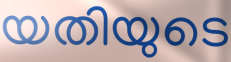
യതിയുടെ